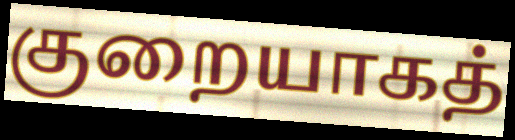
குறையாகத்